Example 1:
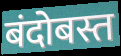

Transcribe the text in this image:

बंदोबस्त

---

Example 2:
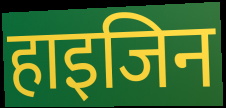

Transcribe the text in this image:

हाइजिन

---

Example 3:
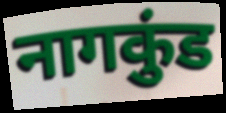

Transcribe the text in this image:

नागकुंड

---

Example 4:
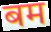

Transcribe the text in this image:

बम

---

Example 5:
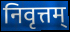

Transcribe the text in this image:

निवृत्तम्